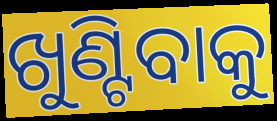
ଖୁଣ୍ଟିବାକୁ